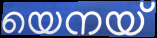
യെനയ്